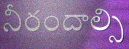
నీరందాల్సి